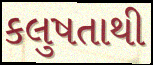
કલુષતાથી